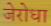
जेरोधा